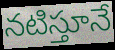
నటిస్తూనే